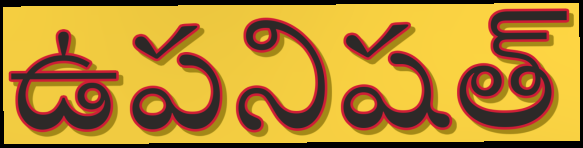
ఉపనిషత్